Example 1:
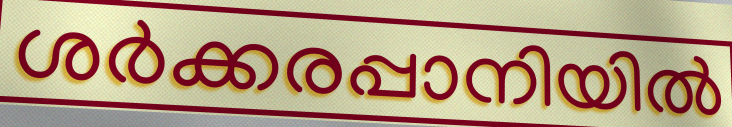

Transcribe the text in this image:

ശർക്കരപ്പാനിയിൽ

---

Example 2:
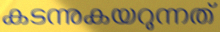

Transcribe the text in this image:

കടന്നുകയറുന്നത്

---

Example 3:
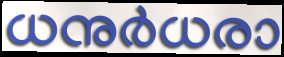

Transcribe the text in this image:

ധനുർധരാ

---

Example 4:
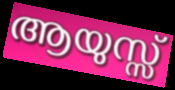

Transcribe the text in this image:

ആയുസ്സ്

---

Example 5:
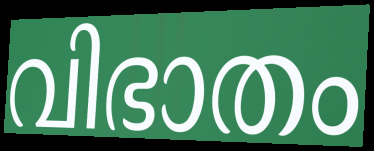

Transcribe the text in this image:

വിഭാതം